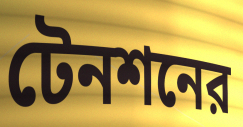
টেনশনের